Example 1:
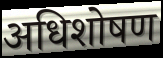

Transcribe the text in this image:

अधिशोषण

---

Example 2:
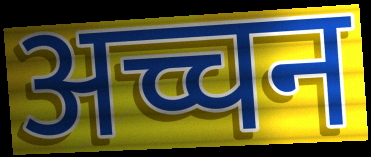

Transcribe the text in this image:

अच्चन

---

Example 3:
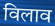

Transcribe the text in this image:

विलाव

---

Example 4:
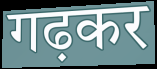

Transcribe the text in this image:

गढ़कर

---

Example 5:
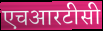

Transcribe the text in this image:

एचआरटीसी